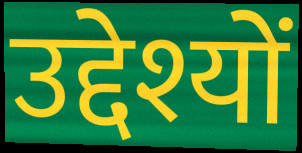
उद्देश्यों